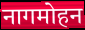
नागमोहन